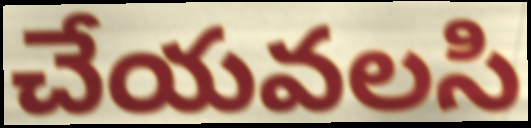
చేయవలసి